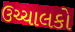
ઉચ્ચાલકો